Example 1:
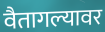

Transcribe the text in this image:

वैतागल्यावर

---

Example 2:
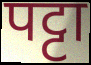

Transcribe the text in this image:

पट्टा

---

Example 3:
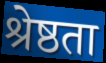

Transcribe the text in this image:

श्रेष्ठता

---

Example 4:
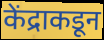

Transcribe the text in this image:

केंद्राकडून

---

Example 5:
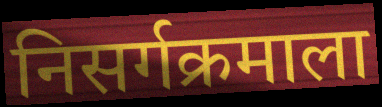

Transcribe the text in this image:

निसर्गक्रमाला